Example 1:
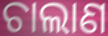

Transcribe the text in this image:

ଚାଲାଣ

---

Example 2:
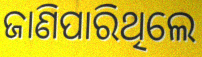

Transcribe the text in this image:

ଜାଣିପାରିଥିଲେ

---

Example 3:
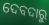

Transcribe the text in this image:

ଦେବଦାରୁ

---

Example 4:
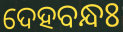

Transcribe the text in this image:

ଦେହବନ୍ଧଃ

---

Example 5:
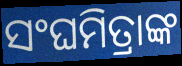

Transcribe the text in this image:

ସଂଘମିତ୍ରାଙ୍କ